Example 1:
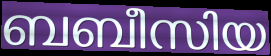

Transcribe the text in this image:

ബബീസിയ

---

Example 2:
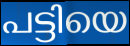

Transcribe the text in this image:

പട്ടിയെ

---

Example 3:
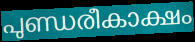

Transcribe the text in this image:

പുണ്ഡരീകാക്ഷം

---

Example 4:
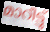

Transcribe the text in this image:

മാറീട്ടു്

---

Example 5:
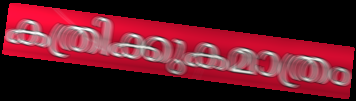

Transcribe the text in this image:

കത്രിക്കുകമാത്രം